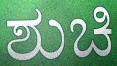
ಶುಚಿ